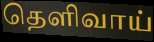
தெளிவாய்